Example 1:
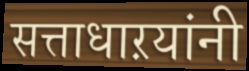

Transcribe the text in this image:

सत्ताधाऱयांनी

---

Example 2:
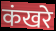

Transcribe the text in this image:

कंखरे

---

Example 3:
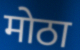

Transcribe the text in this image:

मोठा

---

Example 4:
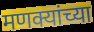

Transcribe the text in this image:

मणक्यांच्या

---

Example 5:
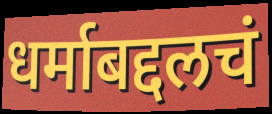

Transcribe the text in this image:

धर्माबद्दलचं